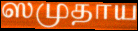
ஸமுதாய